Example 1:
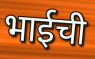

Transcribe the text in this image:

भाईची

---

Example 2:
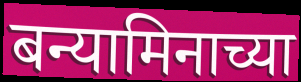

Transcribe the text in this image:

बन्यामिनाच्या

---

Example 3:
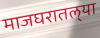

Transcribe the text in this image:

माजघरातल्या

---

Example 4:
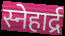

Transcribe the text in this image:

स्नेहार्द्र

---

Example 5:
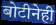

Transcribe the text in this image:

बोटीनेही